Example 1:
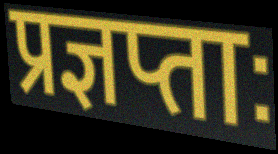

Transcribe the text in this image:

प्रज्ञप्ताः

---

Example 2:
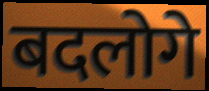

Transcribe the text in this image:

बदलोगे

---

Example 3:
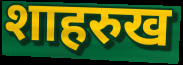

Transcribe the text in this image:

शाहरुख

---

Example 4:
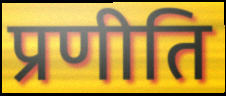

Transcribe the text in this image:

प्रणीति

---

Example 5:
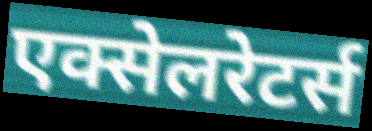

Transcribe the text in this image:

एक्सेलरेटर्स